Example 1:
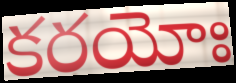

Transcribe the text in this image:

కరయోః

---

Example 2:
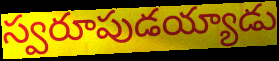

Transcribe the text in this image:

స్వరూపుడయ్యాడు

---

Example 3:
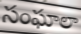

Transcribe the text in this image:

సంఘాలా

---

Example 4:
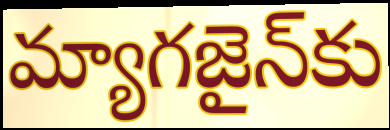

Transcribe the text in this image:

మ్యాగజైన్‌కు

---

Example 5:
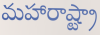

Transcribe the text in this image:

మహారాష్ట్రా